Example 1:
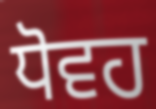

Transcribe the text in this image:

ਧੋਵਹ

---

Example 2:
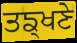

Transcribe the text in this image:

ਤਙ੍ਖਣੇ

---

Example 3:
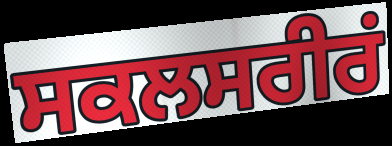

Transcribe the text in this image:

ਸਕਲਸਰੀਰਂ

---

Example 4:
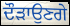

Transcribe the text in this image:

ਦੌੜਾਉਣਗੇ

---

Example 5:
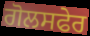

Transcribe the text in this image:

ਗੋਲਸਫੇਰ